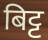
बिट्ट